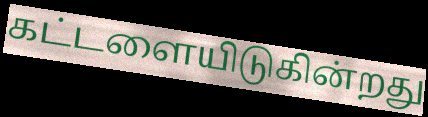
கட்டளையிடுகின்றது